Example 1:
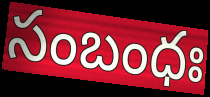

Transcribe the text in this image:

సంబంధః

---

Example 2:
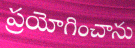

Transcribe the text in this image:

ప్రయోగించాను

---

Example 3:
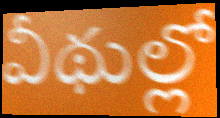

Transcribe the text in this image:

వీథుల్లో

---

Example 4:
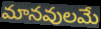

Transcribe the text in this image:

మానవులమే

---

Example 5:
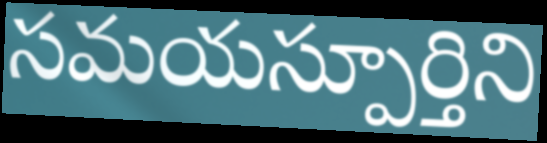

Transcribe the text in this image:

సమయస్పూర్తిని